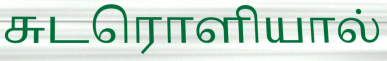
சுடரொளியால்